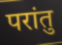
परांतु